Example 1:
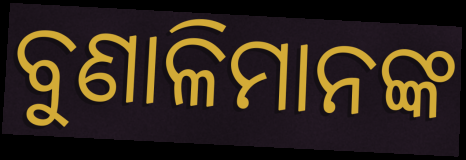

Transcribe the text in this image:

ବୁଣାଳିମାନଙ୍କ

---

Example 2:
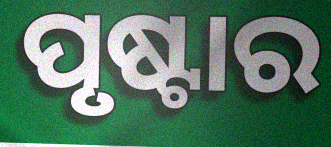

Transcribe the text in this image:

ପୃଷ୍ଟାର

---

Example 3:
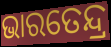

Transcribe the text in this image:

ଭାରତେନ୍ଦ୍ର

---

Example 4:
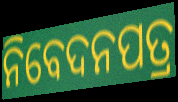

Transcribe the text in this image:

ନିବେଦନପତ୍ର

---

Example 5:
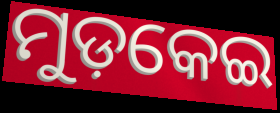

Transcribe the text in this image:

ମୁଡ଼କେଇ